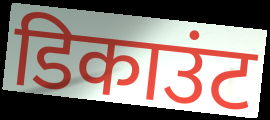
डिकाउंट